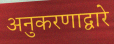
अनुकरणाद्वारे